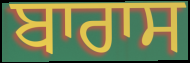
ਬਾਰਾਸ